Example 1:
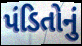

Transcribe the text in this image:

પંડિતોનું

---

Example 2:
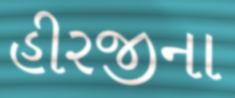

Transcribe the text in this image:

હીરજીના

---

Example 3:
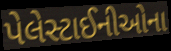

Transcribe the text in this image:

પેલેસ્ટાઈનીઓના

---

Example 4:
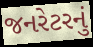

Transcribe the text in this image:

જનરેટરનું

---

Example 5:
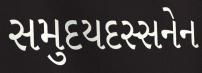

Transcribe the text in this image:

સમુદયદસ્સનેન